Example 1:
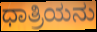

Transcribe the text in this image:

ಧಾತ್ರಿಯನು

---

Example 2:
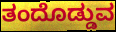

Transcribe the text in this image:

ತಂದೊಡ್ಡುವ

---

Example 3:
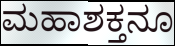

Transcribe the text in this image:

ಮಹಾಶಕ್ತನೂ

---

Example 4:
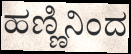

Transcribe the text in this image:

ಹಣ್ಣಿನಿಂದ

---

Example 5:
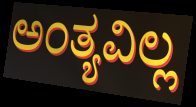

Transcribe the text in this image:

ಅಂತ್ಯವಿಲ್ಲ